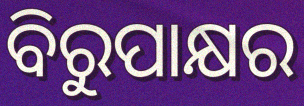
ବିରୁପାକ୍ଷର